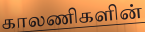
காலணிகளின்